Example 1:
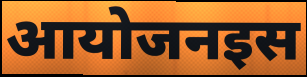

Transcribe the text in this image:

आयोजनइस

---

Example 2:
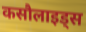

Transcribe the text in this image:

कसौलाइड्स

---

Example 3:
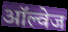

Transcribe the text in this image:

ऑल्वेज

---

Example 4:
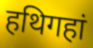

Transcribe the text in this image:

हथिगहां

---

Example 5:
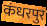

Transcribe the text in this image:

कंधरपुर